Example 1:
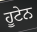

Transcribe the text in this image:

ਹੂਟੇਨ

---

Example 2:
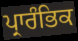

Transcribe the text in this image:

ਪ੍ਰਾਰੰਭਿਕ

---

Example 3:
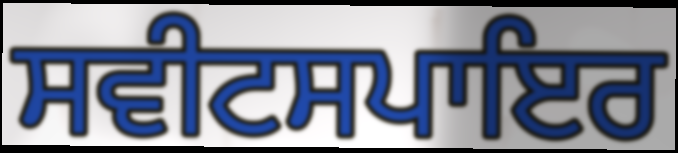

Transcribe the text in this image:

ਸਵੀਟਸਪਾਇਰ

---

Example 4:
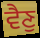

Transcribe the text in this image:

ਵੈਣੁ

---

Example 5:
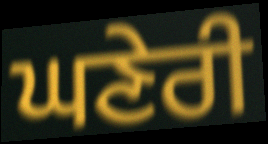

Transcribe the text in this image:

ਘਣੇਰੀ